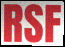
RSF